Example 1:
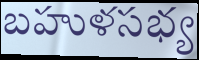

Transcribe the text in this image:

బహుళసభ్య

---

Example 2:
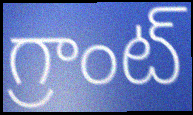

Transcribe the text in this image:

గ్రాంట్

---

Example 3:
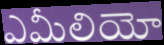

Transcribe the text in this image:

ఎమీలియో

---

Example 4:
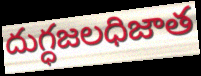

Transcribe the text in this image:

దుగ్ధజలధిజాత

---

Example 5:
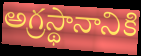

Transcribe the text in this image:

అగ్రస్థానానికి